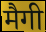
मैगी